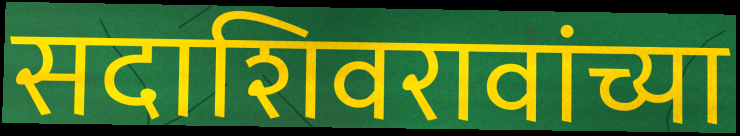
सदाशिवरावांच्या